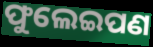
ଫୁଲେଇପଣ